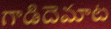
గాడిదెమాట